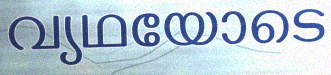
വ്യഥയോടെ